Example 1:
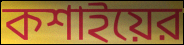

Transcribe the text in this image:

কশাইয়ের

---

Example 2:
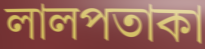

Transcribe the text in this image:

লালপতাকা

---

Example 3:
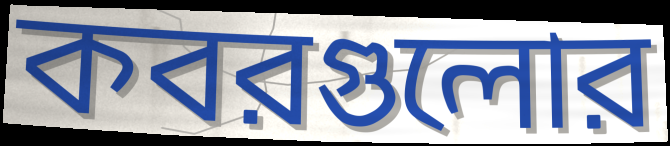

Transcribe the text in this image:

কবরগুলোর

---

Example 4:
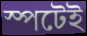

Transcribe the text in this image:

স্পটেই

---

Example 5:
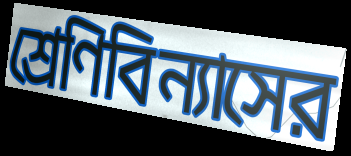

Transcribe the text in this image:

শ্রেণিবিন্যাসের